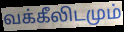
வக்கீலிடமும்